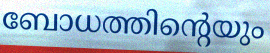
ബോധത്തിന്റെയും